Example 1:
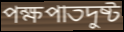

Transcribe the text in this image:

পক্ষপাতদুষ্ট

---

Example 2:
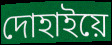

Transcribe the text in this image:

দোহাইয়ে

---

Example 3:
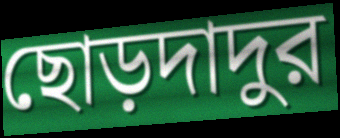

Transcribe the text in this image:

ছোড়দাদুর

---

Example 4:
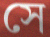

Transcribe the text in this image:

সে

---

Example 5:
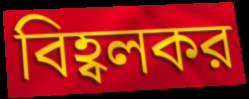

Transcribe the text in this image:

বিহ্বলকর